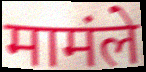
मामंले